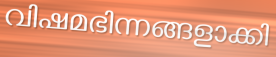
വിഷമഭിന്നങ്ങളാക്കി